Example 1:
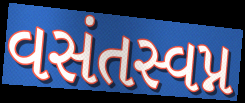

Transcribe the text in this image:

વસંતસ્વપ્ન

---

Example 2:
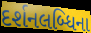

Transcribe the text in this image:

દર્શનલબ્ધિના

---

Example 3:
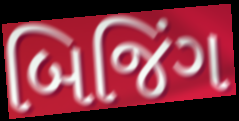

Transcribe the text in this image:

બિજિંગ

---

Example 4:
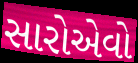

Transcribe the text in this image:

સારોએવો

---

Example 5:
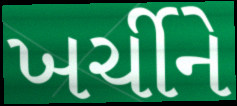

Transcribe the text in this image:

ખર્ચીને